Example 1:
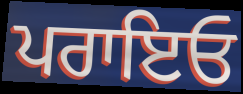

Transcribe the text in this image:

ਪਰਾਇਓ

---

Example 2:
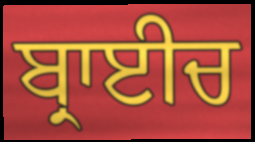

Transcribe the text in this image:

ਬ੍ਰਾਈਚ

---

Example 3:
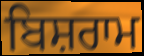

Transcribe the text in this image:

ਬਿਸ਼ਰਾਮ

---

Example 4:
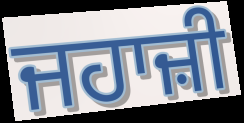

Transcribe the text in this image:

ਜਹਾਜ਼ੀ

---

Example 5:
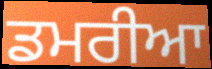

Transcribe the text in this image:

ਡਮਰੀਆ